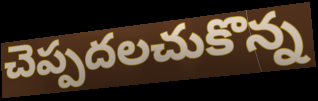
చెప్పదలచుకొన్న